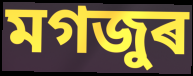
মগজুৰ